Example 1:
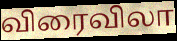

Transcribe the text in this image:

விரைவிலா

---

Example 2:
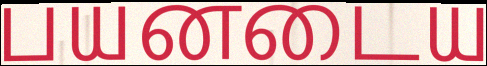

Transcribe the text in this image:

பயனடைய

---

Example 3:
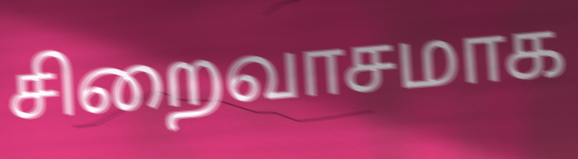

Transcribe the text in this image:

சிறைவாசமாக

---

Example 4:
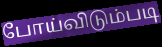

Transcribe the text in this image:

போய்விடும்படி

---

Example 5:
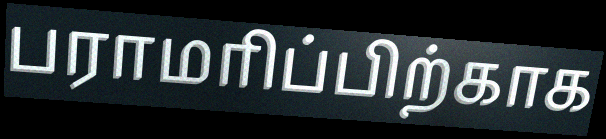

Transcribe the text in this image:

பராமரிப்பிற்காக